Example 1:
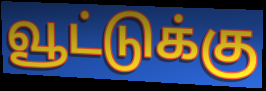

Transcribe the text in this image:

வூட்டுக்கு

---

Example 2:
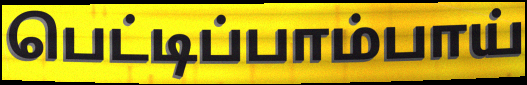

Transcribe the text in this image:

பெட்டிப்பாம்பாய்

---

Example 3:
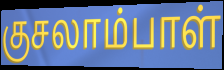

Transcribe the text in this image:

குசலாம்பாள்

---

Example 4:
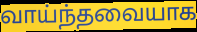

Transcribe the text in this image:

வாய்ந்தவையாக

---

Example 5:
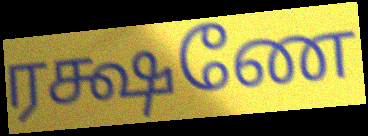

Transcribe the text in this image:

ரக்ஷணே